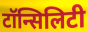
टॉन्सिलिटी